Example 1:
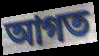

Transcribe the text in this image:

আগত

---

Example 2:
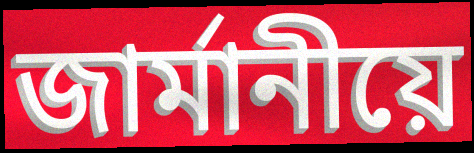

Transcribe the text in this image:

জাৰ্মানীয়ে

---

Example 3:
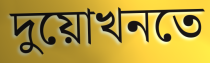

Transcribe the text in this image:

দুয়োখনতে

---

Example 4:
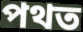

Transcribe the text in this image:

পথত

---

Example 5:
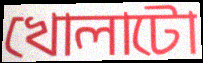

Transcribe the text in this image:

খোলাটো